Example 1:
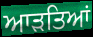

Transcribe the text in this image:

ਆੜਤਿਆਂ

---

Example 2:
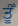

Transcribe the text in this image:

ਤੂੰਁ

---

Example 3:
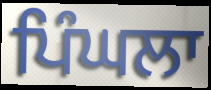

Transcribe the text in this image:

ਪਿੰਘਲਾ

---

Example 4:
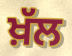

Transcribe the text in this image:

ਖ਼ੱਲ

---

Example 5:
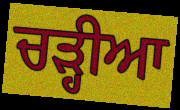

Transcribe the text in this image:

ਚੜ੍ਹੀਆ